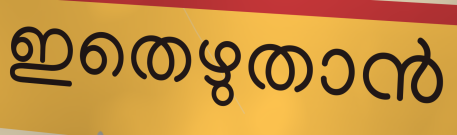
ഇതെഴുതാൻ